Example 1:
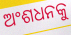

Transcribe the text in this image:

ଅଂଶଧନକୁ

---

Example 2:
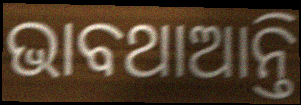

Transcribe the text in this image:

ଭାବଥାଆନ୍ତି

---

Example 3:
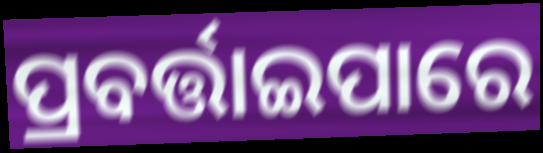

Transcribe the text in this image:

ପ୍ରବର୍ତ୍ତାଇପାରେ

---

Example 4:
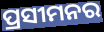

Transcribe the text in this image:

ପ୍ରସୀମନର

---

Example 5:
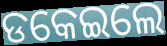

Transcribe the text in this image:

ଡକେଇଲେ